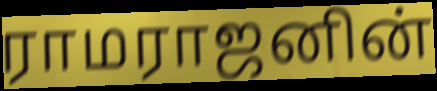
ராமராஜனின்